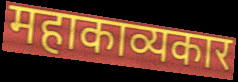
महाकाव्यकार